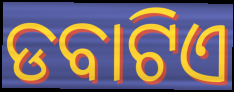
ଡବାଟିଏ